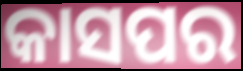
କାସପର